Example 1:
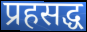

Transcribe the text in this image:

प्रहसद्ध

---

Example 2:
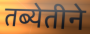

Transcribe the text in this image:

तब्येतीने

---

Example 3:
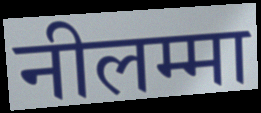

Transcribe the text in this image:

नीलम्मा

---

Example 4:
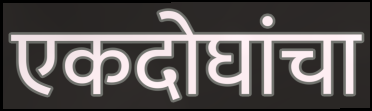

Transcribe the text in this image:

एकदोघांचा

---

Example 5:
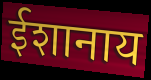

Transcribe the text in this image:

ईशानाय